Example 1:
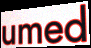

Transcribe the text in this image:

umed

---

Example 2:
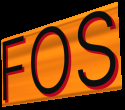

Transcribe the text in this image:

FOS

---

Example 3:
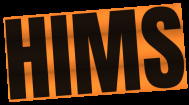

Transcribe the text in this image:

HIMS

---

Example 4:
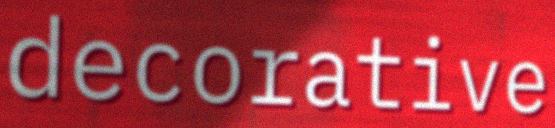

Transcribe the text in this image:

decorative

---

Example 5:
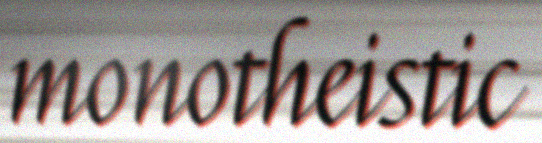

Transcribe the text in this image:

monotheistic